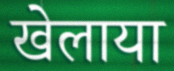
खेलाया